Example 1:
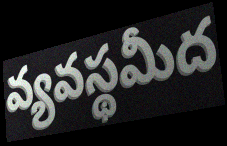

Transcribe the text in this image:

వ్యవస్థమీద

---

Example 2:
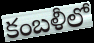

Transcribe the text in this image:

కంబళీలో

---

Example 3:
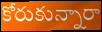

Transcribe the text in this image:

కోరుకున్నారా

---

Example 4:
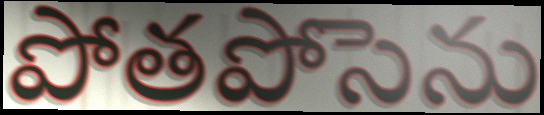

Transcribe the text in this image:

పోతపోసెను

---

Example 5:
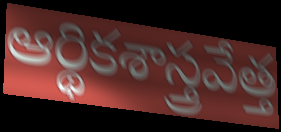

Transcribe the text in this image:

ఆర్థికశాస్త్రవేత్త